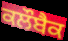
ਕਲੌਬੈਕ